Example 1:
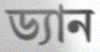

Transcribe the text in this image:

ড্যান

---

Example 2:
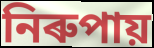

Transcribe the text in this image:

নিৰুপায়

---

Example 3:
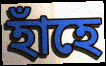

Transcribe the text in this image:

হাঁহে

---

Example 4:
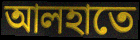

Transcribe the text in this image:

আলহাতে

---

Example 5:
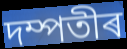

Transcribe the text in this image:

দম্পতীৰ